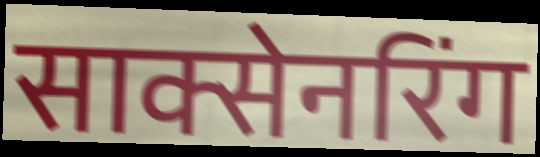
साक्सेनरिंग